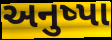
અનુષ્પા